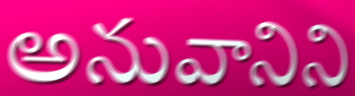
అనువానిని